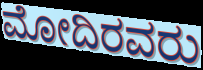
ಮೋದಿರವರು